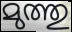
മുത്തു